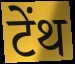
टेंथ